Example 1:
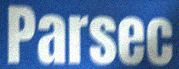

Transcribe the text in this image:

Parsec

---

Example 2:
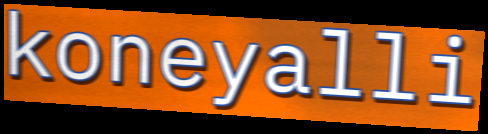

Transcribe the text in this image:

koneyalli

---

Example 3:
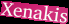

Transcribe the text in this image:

Xenakis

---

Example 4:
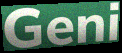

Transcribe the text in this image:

Geni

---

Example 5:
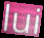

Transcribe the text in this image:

lui